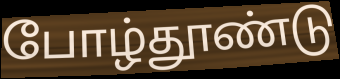
போழ்தூண்டு